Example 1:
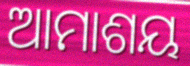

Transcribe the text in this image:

ଆମାଶୟ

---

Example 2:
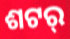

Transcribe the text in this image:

ଶଟର୍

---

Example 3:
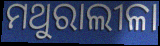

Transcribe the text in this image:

ମଥୁରାଲୀଳା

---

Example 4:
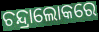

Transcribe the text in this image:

ଚନ୍ଦ୍ରାଲୋକରେ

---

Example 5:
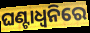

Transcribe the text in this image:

ଘଣ୍ଟାଧ୍ୱନିରେ